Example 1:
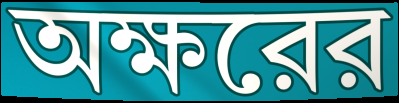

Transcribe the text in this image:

অক্ষরের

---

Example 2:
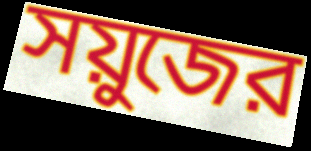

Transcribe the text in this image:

সয়ুজের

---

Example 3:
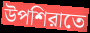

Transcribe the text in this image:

উপশিরাতে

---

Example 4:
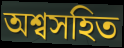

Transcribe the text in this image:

অশ্বসহিত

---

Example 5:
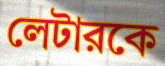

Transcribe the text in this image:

লেটারকে